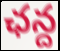
ఛన్ద